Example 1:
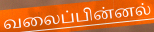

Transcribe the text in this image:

வலைப்பின்னல்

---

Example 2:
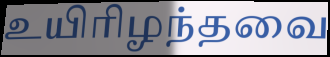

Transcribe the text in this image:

உயிரிழந்தவை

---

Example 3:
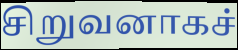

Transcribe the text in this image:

சிறுவனாகச்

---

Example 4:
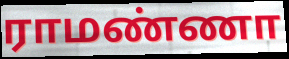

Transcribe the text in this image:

ராமண்ணா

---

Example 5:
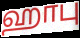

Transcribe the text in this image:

ஹாபு